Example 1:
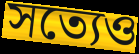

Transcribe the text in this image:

সত্যেও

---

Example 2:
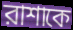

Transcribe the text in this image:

রাশাকে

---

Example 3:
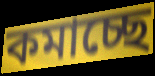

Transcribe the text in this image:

কমাচ্ছে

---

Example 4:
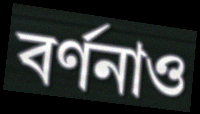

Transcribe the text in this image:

বর্ণনাও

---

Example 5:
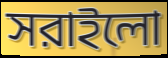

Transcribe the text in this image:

সরাইলো